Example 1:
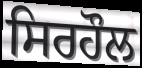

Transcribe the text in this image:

ਸਿਰਹੌਲ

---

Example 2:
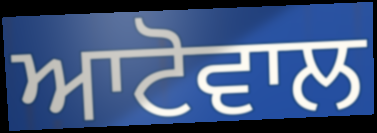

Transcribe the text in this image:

ਆਟੋਵਾਲ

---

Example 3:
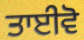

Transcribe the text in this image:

ਤਾਈਵੋ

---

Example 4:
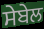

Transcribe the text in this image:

ਸੇਬੇਲ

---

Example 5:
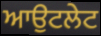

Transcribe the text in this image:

ਆਉਟਲੇਟ